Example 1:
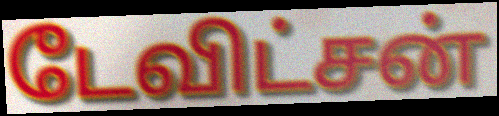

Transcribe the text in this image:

டேவிட்சன்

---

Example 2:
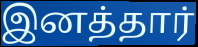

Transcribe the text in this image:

இனத்தார்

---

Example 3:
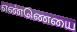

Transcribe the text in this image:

எண்ணெயை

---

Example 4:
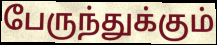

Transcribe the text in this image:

பேருந்துக்கும்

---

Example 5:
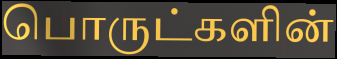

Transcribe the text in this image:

பொருட்களின்